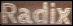
Radix